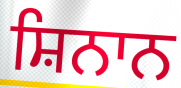
ਸ਼ਿਨਾਨ